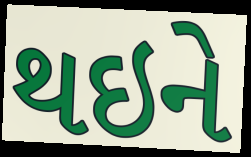
થઇને